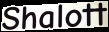
Shalott